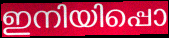
ഇനിയിപ്പൊ